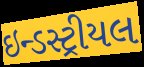
ઇન્ડસ્ટ્રીયલ